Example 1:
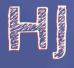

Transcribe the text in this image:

HJ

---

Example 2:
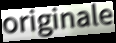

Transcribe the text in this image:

originale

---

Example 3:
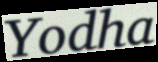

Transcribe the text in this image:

Yodha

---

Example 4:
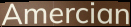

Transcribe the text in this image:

Amercian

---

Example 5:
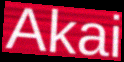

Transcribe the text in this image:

Akai